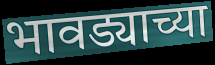
भावड्याच्या